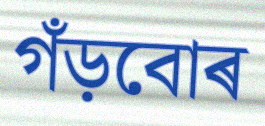
গঁড়বোৰ